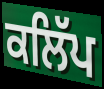
ਕਲਿੱਪ